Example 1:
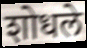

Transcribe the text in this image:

शोधले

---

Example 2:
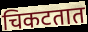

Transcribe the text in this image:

चिकटतात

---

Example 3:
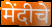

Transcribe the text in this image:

मेंदीचे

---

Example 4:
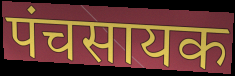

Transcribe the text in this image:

पंचसायक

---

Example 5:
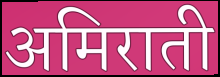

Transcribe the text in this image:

अमिराती